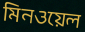
মিনওয়েল